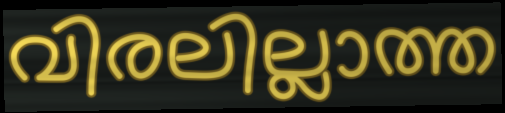
വിരലില്ലാത്ത